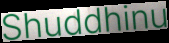
Shuddhinu